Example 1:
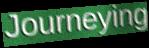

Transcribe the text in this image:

Journeying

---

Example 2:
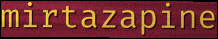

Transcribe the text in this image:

mirtazapine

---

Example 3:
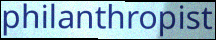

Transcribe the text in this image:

philanthropist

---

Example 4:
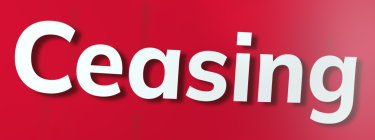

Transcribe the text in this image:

Ceasing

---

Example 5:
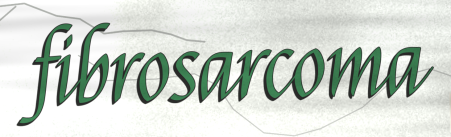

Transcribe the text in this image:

fibrosarcoma